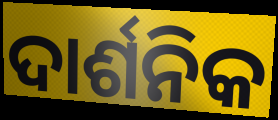
ଦାର୍ଶନିକ